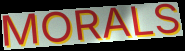
MORALS